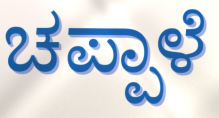
ಚಪ್ಪಾಳೆ